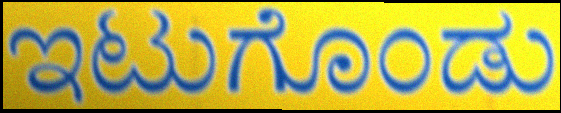
ಇಟುಗೊಂಡು